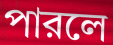
পারলে